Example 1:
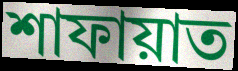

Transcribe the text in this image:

শাফায়াত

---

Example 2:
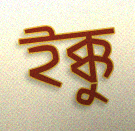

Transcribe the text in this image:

ইক্কু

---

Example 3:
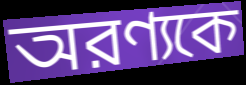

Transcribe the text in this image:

অরণ্যকে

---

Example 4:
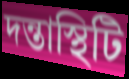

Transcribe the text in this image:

দন্তাস্থিটি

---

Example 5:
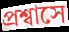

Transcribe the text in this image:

প্রশ্বাসে